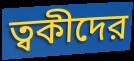
ত্বকীদের